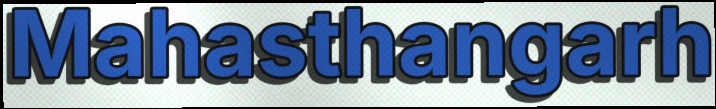
Mahasthangarh